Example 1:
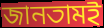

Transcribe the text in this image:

জানতামই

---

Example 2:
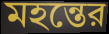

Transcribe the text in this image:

মহন্তের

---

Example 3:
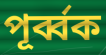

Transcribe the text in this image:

পূর্ব্বক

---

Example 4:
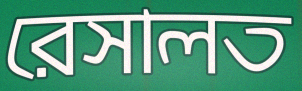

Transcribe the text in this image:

রেসালত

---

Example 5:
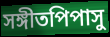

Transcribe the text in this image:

সঙ্গীতপিপাসু